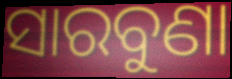
ସାରବୁଣା